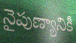
నైపుణ్యానికీ